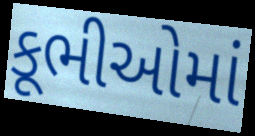
કૂભીઓમાં